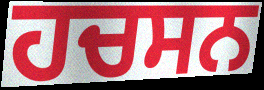
ਹਚਸਨ